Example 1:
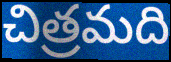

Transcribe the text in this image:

చిత్రమది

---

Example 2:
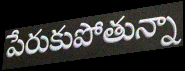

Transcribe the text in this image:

పేరుకుపోతున్నా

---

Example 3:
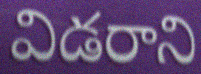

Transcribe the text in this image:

విడరాని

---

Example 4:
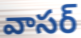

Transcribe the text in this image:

వాసర్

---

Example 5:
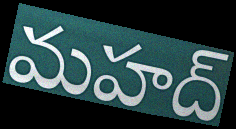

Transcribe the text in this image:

మహద్